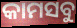
କାମସବୁ